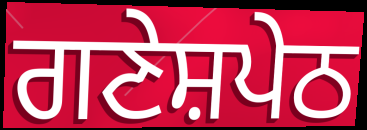
ਗਣੇਸ਼ਪੇਠ